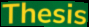
Thesis